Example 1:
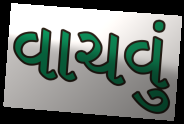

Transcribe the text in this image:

વાચવું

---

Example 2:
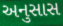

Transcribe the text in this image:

અનુસાસ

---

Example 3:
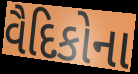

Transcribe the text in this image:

વૈદિકોના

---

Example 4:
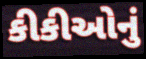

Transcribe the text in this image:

કીકીઓનું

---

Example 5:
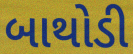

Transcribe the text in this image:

બાથોડી